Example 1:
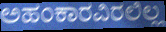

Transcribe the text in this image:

ಅಹಂಕಾರವಿರಲಿಲ್ಲ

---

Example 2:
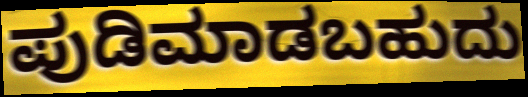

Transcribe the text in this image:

ಪುಡಿಮಾಡಬಹುದು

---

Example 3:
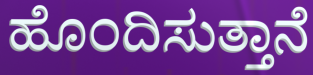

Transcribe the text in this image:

ಹೊಂದಿಸುತ್ತಾನೆ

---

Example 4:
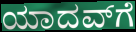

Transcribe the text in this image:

ಯಾದವ್‌ಗೆ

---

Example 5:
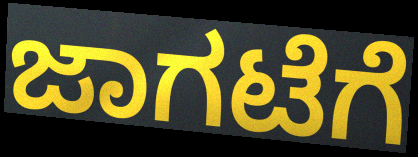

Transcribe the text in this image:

ಜಾಗಟೆಗೆ